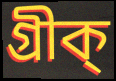
গ্ৰীক্